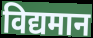
विद्यमान